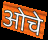
ओचे